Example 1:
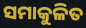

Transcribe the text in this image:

ସମାକୁଳିତ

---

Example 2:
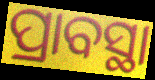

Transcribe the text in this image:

ପ୍ରାବସ୍ଥା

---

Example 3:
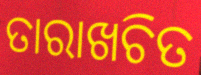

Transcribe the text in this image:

ତାରାଖଚିତ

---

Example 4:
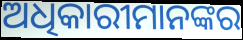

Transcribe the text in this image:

ଅଧିକାରୀମାନଙ୍କର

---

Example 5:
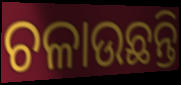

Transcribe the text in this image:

ଚଳାଉଛନ୍ତି